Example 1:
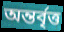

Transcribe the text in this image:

অন্তৰ্বৃত্ত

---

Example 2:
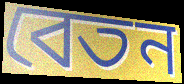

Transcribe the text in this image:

বেতন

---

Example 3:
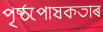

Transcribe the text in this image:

পৃষ্ঠপোষকতাৰ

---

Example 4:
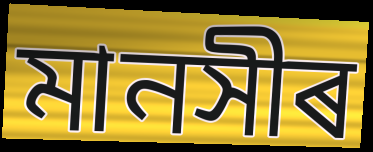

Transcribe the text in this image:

মানসীৰ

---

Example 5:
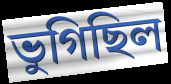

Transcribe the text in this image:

ভুগিছিল